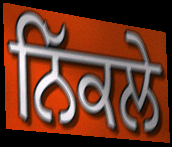
ਨਿੱਕਲੇ